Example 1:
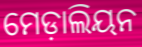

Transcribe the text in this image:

ମେଡ଼ାଲିୟନ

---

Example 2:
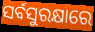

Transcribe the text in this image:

ସର୍ବସୁରକ୍ଷାରେ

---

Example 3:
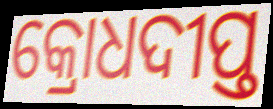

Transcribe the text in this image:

କ୍ରୋଧଦୀପ୍ତ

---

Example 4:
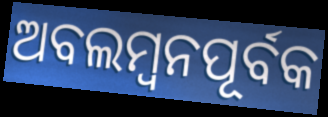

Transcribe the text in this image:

ଅବଲମ୍ୱନପୂର୍ବକ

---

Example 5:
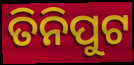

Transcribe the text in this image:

ତିନିପୁଟ